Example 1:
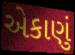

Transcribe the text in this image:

એકાણું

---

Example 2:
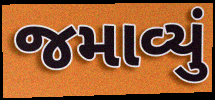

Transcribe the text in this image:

જમાવ્યું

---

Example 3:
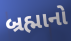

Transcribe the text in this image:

બ્રહ્માનો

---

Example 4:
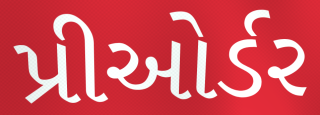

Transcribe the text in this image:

પ્રીઓર્ડર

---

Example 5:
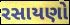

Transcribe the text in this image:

રસાયણો